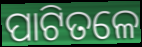
ପାଟିତଳେ